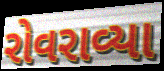
રોવરાવ્યા